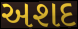
અશદ